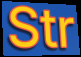
Str